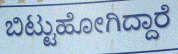
ಬಿಟ್ಟುಹೋಗಿದ್ದಾರೆ